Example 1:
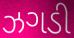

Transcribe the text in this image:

ઝગડી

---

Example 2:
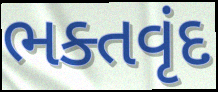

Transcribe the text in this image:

ભક્તવૃંદ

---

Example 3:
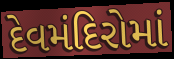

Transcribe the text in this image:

દેવમંદિરોમાં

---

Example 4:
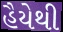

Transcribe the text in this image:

હૈયેથી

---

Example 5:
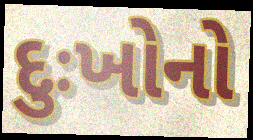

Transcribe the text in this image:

દુઃખોનો